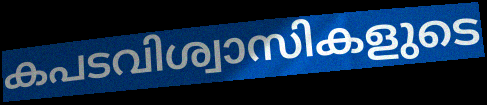
കപടവിശ്വാസികളുടെ